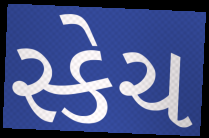
સ્કેચ